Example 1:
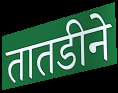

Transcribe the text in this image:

तातडीने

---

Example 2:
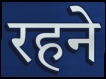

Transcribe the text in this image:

रहने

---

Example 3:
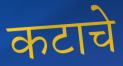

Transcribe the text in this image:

कटाचे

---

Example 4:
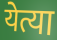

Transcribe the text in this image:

येत्या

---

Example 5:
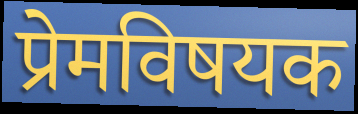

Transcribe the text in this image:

प्रेमविषयक